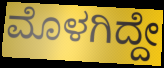
ಮೊಳಗಿದ್ದೇ